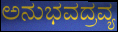
ಅನುಭವದ್ರವ್ಯ